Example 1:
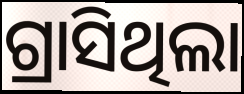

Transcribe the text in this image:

ଗ୍ରାସିଥିଲା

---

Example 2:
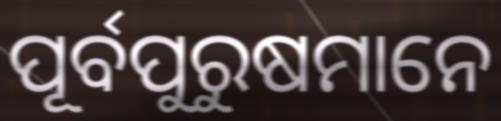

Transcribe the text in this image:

ପୂର୍ବପୁରୁଷମାନେ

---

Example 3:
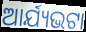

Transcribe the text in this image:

ଆର୍ଯ୍ୟଭଟା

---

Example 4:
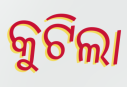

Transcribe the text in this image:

କୁଟିଲା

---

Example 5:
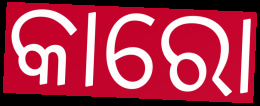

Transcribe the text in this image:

କାରୋ